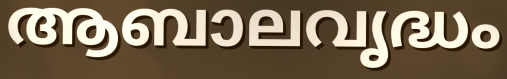
ആബാലവൃദ്ധം